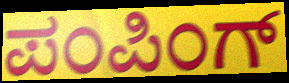
ಪಂಪಿಂಗ್